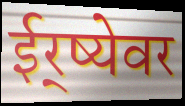
ईर्ष्येवर